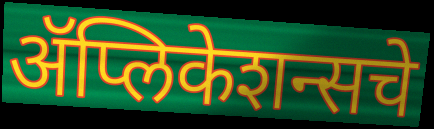
ॲप्लिकेशन्सचे